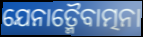
ଯେନାତ୍ମୈବାତ୍ମନା